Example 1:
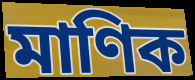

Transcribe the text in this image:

মাণিক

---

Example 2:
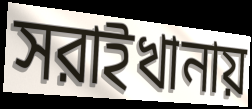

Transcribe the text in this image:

সরাইখানায়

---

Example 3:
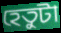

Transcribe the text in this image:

হেতুটা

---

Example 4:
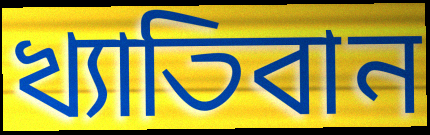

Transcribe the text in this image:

খ্যাতিবান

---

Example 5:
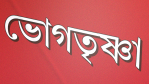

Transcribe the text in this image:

ভোগতৃষ্ণা